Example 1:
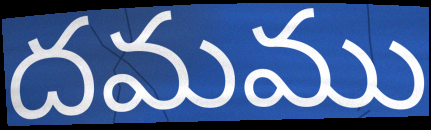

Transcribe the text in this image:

దమము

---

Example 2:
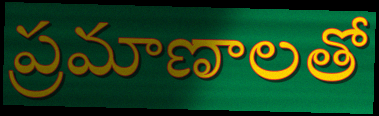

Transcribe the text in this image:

ప్రమాణాలతో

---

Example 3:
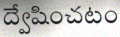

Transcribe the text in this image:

ద్వేషించటం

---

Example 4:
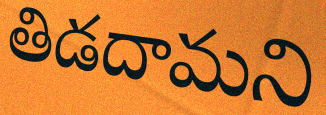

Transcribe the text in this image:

తిడదామని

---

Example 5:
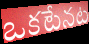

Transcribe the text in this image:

ఒకటేనట